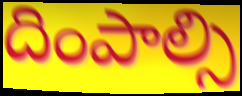
దింపాల్సి